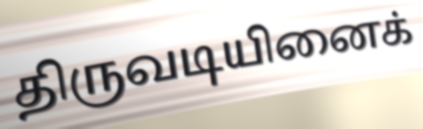
திருவடியினைக்